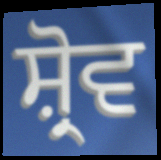
ਸ਼੍ਰੋਵ